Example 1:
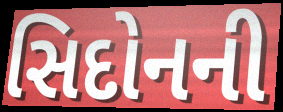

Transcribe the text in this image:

સિદોનની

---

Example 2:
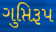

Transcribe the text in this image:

ગુપ્તિરૂપ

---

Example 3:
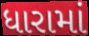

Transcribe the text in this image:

ધારામાં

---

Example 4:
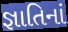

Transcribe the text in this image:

જ્ઞાતિનાં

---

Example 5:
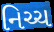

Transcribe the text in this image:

નિચ્ચ